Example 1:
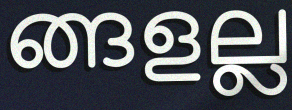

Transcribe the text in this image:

ങ്ങളല്ല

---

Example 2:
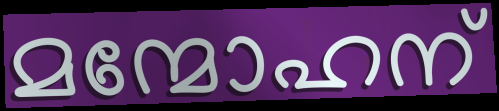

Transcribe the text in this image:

മന്മോഹന്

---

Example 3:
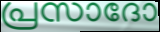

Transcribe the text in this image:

പ്രസാദോ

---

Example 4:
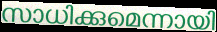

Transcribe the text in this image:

സാധിക്കുമെന്നായി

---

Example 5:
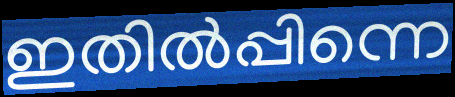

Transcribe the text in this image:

ഇതിൽപ്പിന്നെ